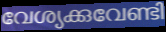
വേശ്യക്കുവേണ്ടി